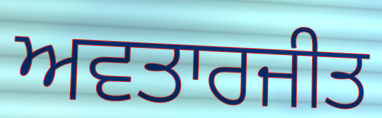
ਅਵਤਾਰਜੀਤ